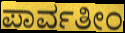
ಪಾರ್ವತೀಂ